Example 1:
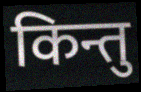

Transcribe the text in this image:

किन्तु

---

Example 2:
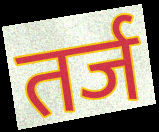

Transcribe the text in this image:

तर्ज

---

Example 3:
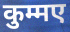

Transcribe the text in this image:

कुम्मए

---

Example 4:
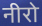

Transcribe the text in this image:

नीरो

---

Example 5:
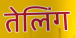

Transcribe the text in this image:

तेलिंग